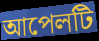
আপেলটি